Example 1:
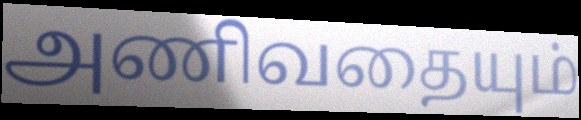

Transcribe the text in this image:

அணிவதையும்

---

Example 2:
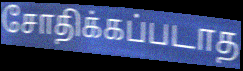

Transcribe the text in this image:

சோதிக்கப்படாத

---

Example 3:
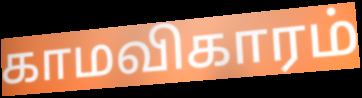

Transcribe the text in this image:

காமவிகாரம்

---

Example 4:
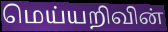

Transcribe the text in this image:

மெய்யறிவின்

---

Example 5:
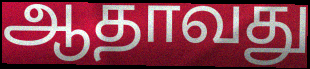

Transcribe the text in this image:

ஆதாவது